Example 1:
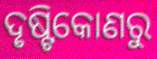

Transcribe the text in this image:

ଦୃଷ୍ଟିକୋଣରୁ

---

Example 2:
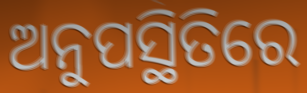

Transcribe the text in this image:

ଅନୁପସ୍ଥିତିରେ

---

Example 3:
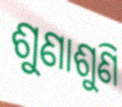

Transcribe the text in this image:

ଶୁଣାଶୁଣି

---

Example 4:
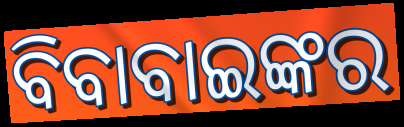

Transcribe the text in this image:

ବିବାବାଇଙ୍କର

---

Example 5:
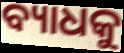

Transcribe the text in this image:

ବ୍ୟାଧକୁ